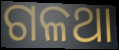
ଗଳଥା